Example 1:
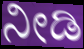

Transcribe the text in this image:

ನೀಡಿ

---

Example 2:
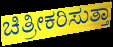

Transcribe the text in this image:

ಚಿತ್ರೀಕರಿಸುತ್ತಾ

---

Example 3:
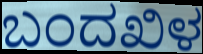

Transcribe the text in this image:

ಬಂದಖಿಳ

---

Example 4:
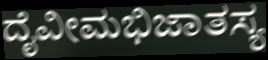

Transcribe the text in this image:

ದೈವೀಮಭಿಜಾತಸ್ಯ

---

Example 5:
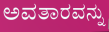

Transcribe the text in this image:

ಅವತಾರವನ್ನು